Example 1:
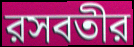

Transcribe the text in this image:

রসবতীর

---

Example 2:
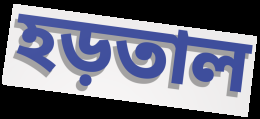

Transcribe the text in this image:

হড়তাল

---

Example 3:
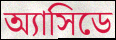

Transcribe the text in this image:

অ্যাসিডে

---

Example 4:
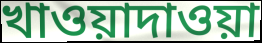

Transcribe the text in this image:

খাওয়াদাওয়া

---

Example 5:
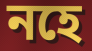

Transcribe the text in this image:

নহে